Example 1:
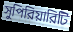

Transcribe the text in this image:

সুপিরিয়ারিটি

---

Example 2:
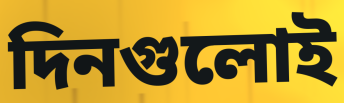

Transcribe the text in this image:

দিনগুলোই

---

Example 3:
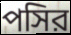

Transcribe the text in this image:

পসির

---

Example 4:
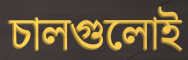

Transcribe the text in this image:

চালগুলোই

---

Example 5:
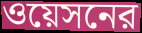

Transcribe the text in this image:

ওয়েসনের